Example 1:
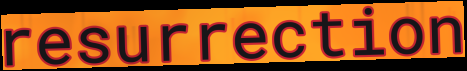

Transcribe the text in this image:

resurrection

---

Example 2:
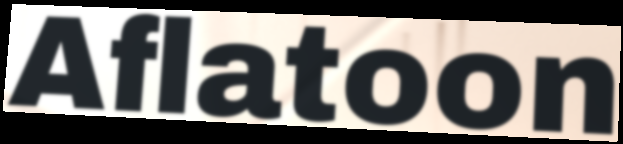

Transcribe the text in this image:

Aflatoon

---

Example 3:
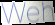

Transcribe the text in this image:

Weh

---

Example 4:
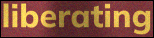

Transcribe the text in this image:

liberating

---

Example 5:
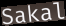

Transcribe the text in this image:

Sakal